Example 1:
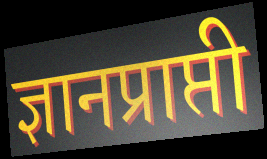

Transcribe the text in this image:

ज्ञानप्राप्ती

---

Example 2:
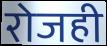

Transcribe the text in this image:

रोजही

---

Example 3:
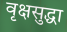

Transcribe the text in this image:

वृक्षसुद्धा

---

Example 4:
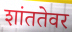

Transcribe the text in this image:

शांततेवर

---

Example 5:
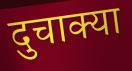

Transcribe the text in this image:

दुचाक्या